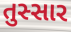
તુસ્સાર